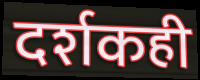
दर्शकही